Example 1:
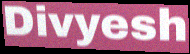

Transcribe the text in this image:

Divyesh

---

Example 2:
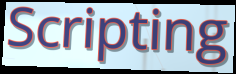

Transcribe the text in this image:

Scripting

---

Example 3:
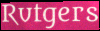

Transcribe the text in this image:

Rutgers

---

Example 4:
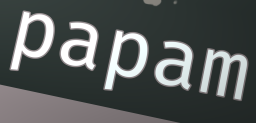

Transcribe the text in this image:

papam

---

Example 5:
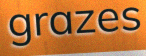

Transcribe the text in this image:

grazes